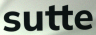
sutte